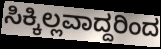
ಸಿಕ್ಕಿಲ್ಲವಾದ್ದರಿಂದ